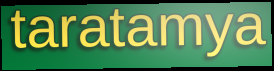
taratamya